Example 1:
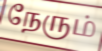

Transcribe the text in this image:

நேரும்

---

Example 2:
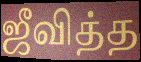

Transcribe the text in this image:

ஜீவித்த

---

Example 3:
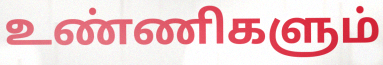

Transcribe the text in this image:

உண்ணிகளும்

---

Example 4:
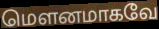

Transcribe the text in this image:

மெளனமாகவே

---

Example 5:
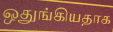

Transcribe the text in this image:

ஒதுங்கியதாக